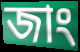
জাং